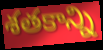
శతకాన్ని